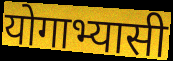
योगाभ्यासी